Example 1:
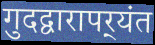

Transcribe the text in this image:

गुदद्वारापर्यंत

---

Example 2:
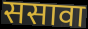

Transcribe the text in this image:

ससावा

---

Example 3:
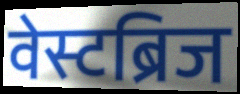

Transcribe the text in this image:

वेस्टब्रिज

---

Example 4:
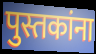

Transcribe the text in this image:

पुस्तकांना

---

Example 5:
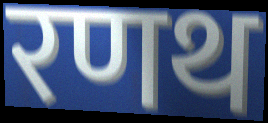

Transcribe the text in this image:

रणथ